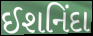
ઈશનિંદા